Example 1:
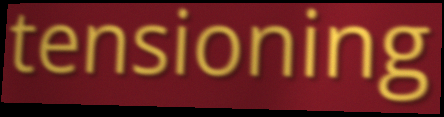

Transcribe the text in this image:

tensioning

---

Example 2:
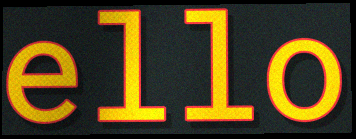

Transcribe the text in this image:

ello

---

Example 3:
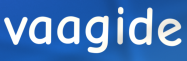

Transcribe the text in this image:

vaagide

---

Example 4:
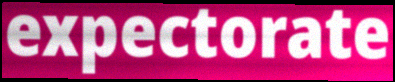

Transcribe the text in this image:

expectorate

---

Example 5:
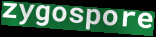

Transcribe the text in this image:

zygospore